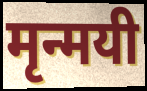
मृन्मयी